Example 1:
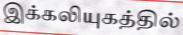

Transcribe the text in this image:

இக்கலியுகத்தில்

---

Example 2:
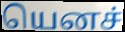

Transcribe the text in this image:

யெனச்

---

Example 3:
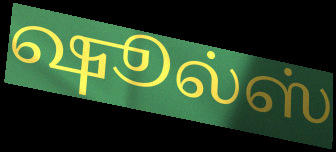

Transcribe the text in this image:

ஷூல்ஸ்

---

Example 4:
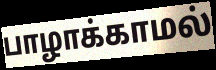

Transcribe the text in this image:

பாழாக்காமல்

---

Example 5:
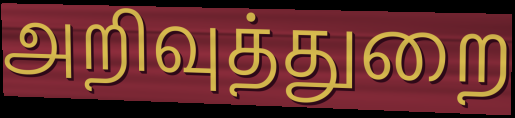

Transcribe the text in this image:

அறிவுத்துறை